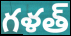
గళత్